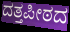
ದತ್ತಪೀಠದ